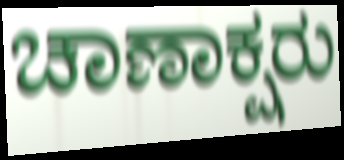
ಚಾಣಾಕ್ಷರು